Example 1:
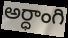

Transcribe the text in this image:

అర్ధాంగి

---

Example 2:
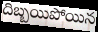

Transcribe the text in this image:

దిబ్బయిపోయిన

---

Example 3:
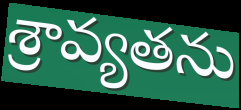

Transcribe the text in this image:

శ్రావ్యతను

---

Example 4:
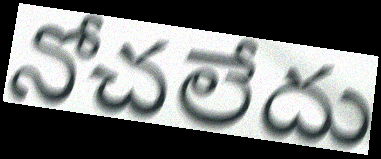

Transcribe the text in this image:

నోచలేదు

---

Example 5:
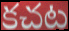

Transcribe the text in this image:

కచట